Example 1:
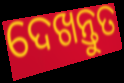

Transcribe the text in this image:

ଦେଖନ୍ତୁତ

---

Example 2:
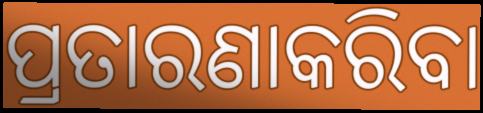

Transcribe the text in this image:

ପ୍ରତାରଣାକରିବା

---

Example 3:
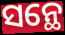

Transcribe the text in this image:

ସନ୍ଥେ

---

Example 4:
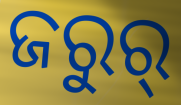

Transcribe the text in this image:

ଜରୁର୍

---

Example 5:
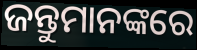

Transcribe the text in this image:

ଜନ୍ତୁମାନଙ୍କରେ